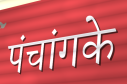
पंचांगके